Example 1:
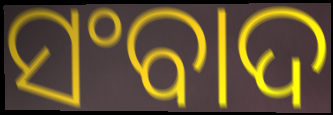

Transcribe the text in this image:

ସଂବାଦ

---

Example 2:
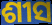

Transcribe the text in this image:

ଶୀସ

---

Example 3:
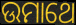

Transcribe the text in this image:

ଉମାଥେ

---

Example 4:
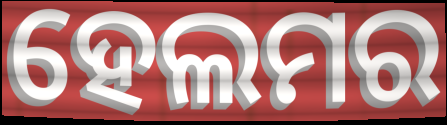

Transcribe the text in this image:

ହେଲମର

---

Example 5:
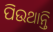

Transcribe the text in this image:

ପିଉଥାନ୍ତି